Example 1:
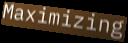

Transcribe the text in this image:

Maximizing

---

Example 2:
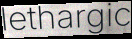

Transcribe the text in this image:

lethargic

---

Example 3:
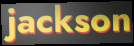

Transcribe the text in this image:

jackson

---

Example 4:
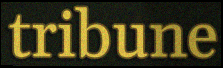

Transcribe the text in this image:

tribune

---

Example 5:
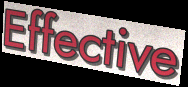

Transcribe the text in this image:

Effective